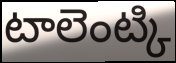
టాలెంట్కి